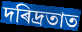
দৰিদ্ৰতাত